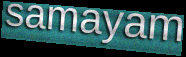
samayam